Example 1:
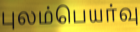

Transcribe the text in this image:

புலம்பெயர்வு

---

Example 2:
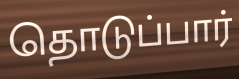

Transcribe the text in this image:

தொடுப்பார்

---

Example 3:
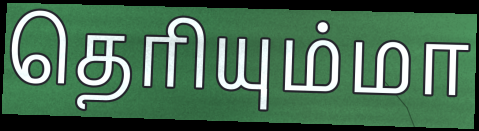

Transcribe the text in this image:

தெரியும்மா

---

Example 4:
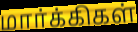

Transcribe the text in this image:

மார்க்கிகள்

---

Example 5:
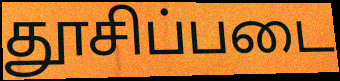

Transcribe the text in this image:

தூசிப்படை